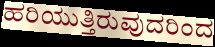
ಹರಿಯುತ್ತಿರುವುದರಿಂದ